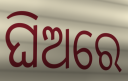
ଘିଅରେ